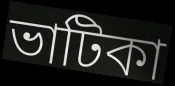
ভাটিকা